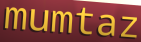
mumtaz